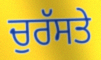
ਚੁਰੱਸਤੇ